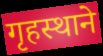
गृहस्थाने